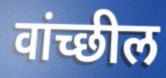
वांच्छील